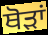
ਥੋੜਾਂ